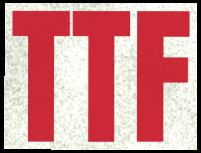
TTF